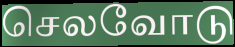
செலவோடு